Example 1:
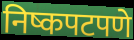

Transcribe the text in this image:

निष्कपटपणे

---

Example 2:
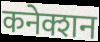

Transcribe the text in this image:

कनेक्‍शन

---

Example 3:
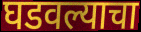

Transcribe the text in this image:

घडवल्याचा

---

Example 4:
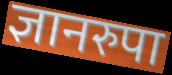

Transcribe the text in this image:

ज्ञानरुपा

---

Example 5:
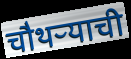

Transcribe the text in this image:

चौथऱ्याची